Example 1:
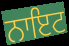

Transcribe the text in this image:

ਨਾਇਟ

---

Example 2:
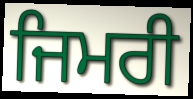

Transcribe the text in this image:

ਜਿਮਰੀ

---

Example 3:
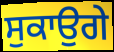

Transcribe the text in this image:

ਸੁਕਾਉਗੇ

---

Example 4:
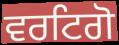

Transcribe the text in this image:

ਵਰਟਿਗੋ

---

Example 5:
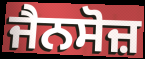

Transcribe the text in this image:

ਜੈਨਸੋਜ਼